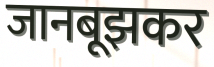
जानबूझकर